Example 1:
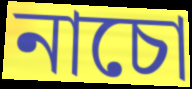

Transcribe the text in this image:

নাচো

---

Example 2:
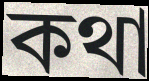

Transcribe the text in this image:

কথা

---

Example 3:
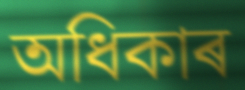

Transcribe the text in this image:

অধিকাৰ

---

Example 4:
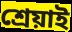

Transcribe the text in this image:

শ্ৰেয়াই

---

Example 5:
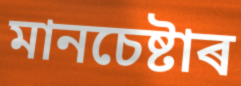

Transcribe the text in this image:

মানচেষ্টাৰ